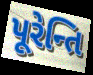
પૂરેન્તિ